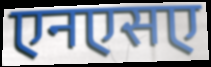
एनएसए